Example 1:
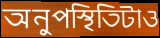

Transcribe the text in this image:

অনুপস্থিতিটাও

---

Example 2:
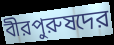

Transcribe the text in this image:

বীরপুরুষদের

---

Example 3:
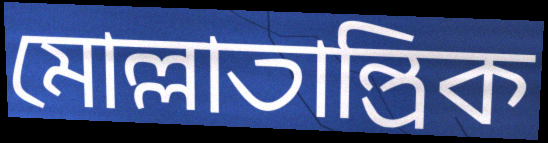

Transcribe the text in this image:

মোল্লাতান্ত্রিক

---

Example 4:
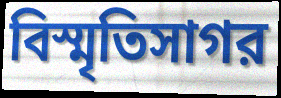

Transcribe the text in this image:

বিস্মৃতিসাগর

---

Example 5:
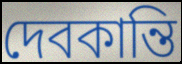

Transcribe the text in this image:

দেবকান্তি